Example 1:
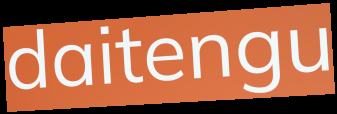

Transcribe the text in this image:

daitengu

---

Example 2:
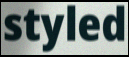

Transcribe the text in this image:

styled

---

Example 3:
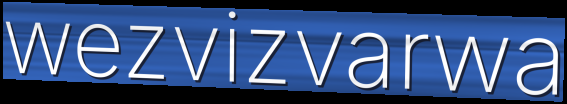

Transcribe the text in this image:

wezvizvarwa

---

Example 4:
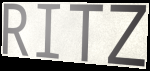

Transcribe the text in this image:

RITZ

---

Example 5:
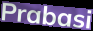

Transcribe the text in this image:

Prabasi